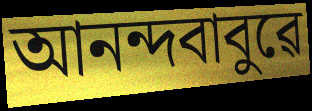
আনন্দবাবুৱে